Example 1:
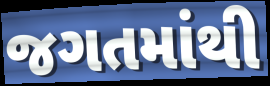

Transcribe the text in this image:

જગતમાંથી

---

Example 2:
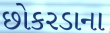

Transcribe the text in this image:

છોકરડાના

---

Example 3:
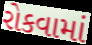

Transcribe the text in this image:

રોકવામાં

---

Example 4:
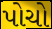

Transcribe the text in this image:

પોચો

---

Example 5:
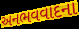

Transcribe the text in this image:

અનભવવાદના